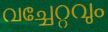
വച്ചേറ്റവും